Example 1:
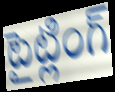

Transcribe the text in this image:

టైట్లింగ్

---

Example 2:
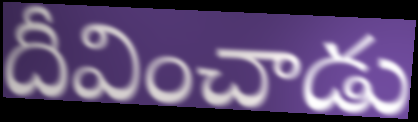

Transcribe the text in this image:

దీవించాడు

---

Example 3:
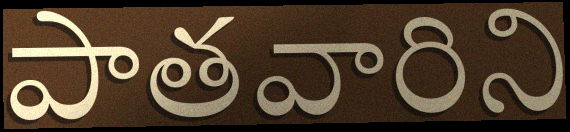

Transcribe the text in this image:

పాతవారిని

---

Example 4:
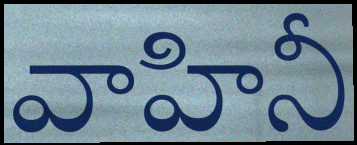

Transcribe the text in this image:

వాహినీ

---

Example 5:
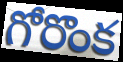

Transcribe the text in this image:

గోరొంక